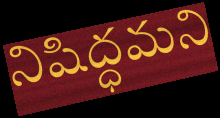
నిషిద్ధమని